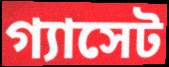
গ্যাসেট